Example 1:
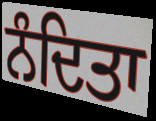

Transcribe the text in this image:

ਨੰਦਿਤਾ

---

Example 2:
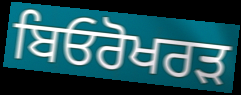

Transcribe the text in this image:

ਬਿਓਰੋਖਰੜ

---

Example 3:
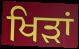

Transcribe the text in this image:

ਖਿੜਾਂ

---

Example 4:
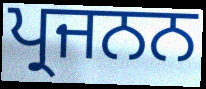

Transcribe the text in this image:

ਪ੍ਰਜਨਨ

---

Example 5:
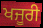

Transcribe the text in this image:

ਖਜੂਰੀ